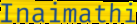
Inaimathi